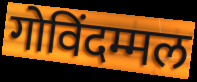
गोविंदम्मल